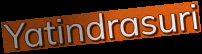
Yatindrasuri